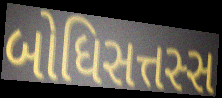
બોધિસત્તસ્સ